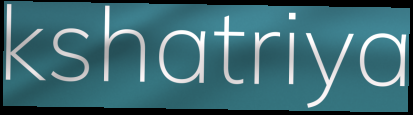
kshatriya